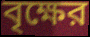
বৃক্ষের